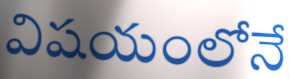
విషయంలోనే